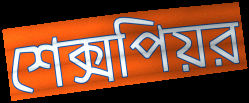
শেক্সপিয়র